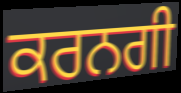
ਕਰਨਗੀ